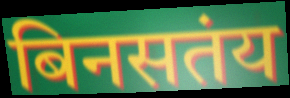
बिनसतंय